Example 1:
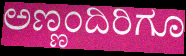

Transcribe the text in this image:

ಅಣ್ಣಂದಿರಿಗೂ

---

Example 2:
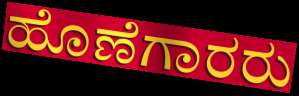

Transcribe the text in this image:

ಹೊಣೆಗಾರರು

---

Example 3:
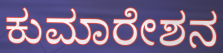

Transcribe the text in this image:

ಕುಮಾರೇಶನ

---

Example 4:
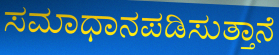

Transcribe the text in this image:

ಸಮಾಧಾನಪಡಿಸುತ್ತಾನೆ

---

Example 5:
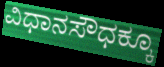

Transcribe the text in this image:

ವಿಧಾನಸೌಧಕ್ಕೂ